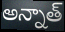
అన్నాత్